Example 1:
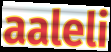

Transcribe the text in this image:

aaleli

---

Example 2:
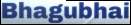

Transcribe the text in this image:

Bhagubhai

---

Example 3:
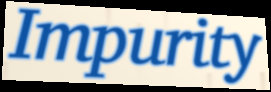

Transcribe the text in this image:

Impurity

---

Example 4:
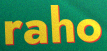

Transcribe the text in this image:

raho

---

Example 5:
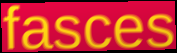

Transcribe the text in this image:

fasces